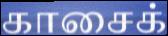
காசைக்